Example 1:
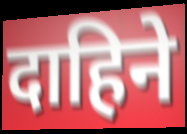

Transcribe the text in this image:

दाहिने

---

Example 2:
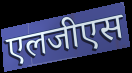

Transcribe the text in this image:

एलजीएस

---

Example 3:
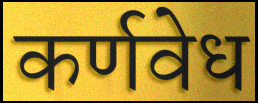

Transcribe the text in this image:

कर्णवेध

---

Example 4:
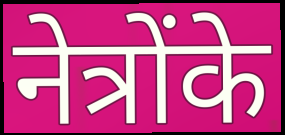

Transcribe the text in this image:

नेत्रोंके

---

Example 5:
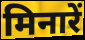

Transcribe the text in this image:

मिनारें